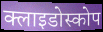
क्लाइडोस्कोप